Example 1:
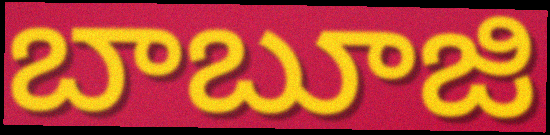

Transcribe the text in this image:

బాబూజి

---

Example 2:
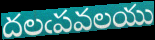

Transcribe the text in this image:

దలఁపవలయు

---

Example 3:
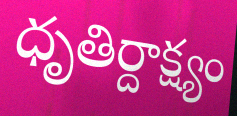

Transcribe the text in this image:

ధృతిర్దాక్ష్యం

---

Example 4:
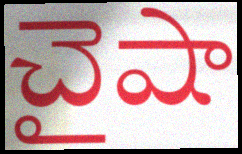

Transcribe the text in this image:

చైషా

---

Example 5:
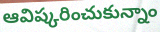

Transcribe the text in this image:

ఆవిష్కరించుకున్నాం